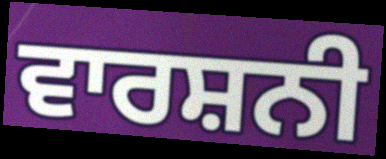
ਵਾਰਸ਼ਨੀ